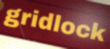
gridlock